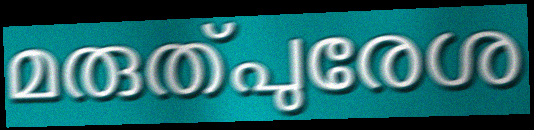
മരുത്പുരേശ